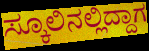
ಸ್ಕೂಲಿನಲ್ಲಿದ್ದಾಗ